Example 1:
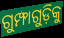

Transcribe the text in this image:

ଗୁମ୍ଫାଗୁଡ଼ିକୁ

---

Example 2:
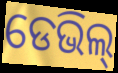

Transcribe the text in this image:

ଡେଭିଲ୍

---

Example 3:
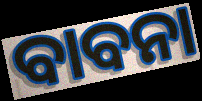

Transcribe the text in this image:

ବାବନା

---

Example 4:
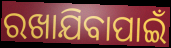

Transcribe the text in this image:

ରଖାଯିବାପାଇଁ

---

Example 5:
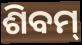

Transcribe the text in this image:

ଶିବମ୍